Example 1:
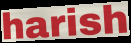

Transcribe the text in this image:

harish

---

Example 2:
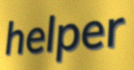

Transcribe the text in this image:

helper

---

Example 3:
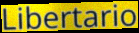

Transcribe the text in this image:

Libertario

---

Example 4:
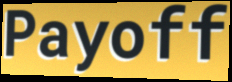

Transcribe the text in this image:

Payoff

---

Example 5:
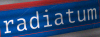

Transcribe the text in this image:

radiatum